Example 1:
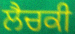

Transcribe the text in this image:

ਲੈਚਕੀ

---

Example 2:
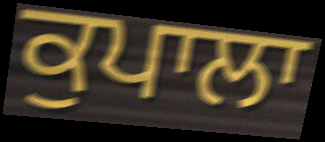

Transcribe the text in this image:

ਕੁਪਾਲਾ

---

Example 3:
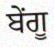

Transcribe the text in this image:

ਬੇਂਗੂ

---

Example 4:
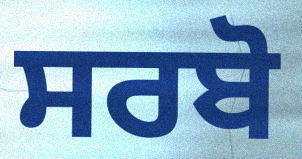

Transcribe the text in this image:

ਸਰਬੋ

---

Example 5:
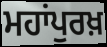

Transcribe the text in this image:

ਮਹਾਂਪੁਰਖ਼